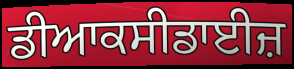
ਡੀਆਕਸੀਡਾਈਜ਼